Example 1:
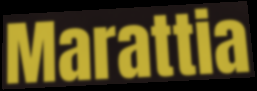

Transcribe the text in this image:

Marattia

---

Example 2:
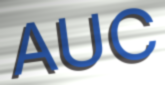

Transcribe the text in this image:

AUC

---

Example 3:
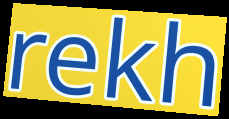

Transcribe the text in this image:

rekh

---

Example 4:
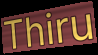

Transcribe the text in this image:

Thiru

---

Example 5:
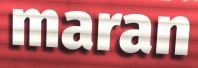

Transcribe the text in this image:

maran